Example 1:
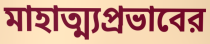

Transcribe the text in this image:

মাহাত্ম্যপ্রভাবের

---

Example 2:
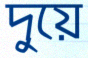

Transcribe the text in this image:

দুয়ে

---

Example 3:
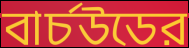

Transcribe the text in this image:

বার্চউডের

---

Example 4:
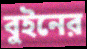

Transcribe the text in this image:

বুইনের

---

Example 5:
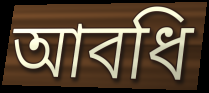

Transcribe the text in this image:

আবধি